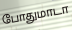
போதுமாடா